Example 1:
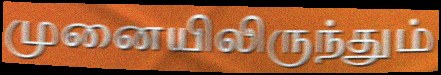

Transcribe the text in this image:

முனையிலிருந்தும்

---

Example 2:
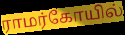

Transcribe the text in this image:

ராமர்கோயில்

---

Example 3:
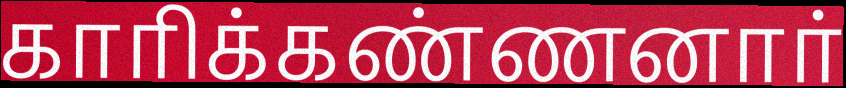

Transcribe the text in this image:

காரிக்கண்ணனார்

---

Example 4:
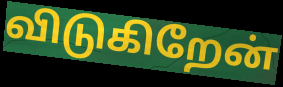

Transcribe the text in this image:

விடுகிறேன்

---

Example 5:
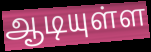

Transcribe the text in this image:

ஆடியுள்ள